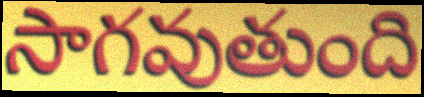
సాగవుతుంది